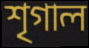
শৃগাল